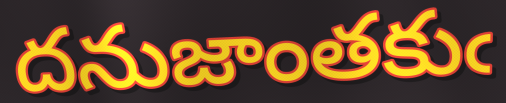
దనుజాంతకుఁ